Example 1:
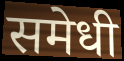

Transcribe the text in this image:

समेधी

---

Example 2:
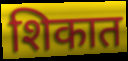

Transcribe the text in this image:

शिकात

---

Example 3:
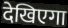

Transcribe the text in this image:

देखिएगा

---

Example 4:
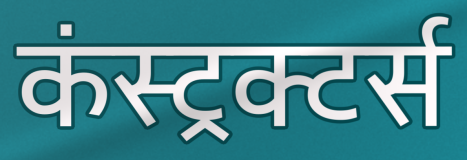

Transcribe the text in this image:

कंस्ट्रक्टर्स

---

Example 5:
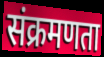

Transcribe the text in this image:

संक्रमणता